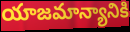
యాజమాన్యానికి